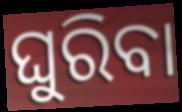
ଘୁରିବା